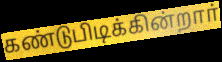
கண்டுபிடிக்கின்றார்